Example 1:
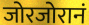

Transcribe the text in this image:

जोरजोरानं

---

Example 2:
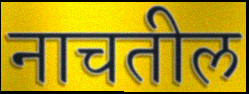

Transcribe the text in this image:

नाचतील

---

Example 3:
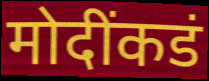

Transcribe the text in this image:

मोदींकडं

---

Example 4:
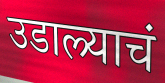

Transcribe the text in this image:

उडाल्याचं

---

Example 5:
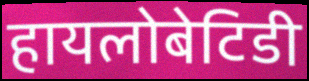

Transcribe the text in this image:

हायलोबेटिडी